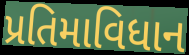
પ્રતિમાવિધાન